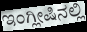
ಇಂಗ್ಲೀಷಿನಲ್ಲಿ